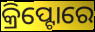
କ୍ରିପ୍ଟୋରେ